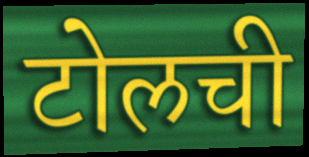
टोलची